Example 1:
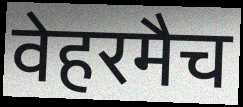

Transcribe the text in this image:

वेहरमैच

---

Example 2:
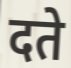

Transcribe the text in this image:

दते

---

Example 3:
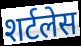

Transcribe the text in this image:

शर्टलेस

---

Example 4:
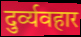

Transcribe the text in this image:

दुर्व्यवहार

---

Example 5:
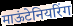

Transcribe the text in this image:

माऊंटेनियरिंग